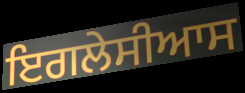
ਇਗਲੇਸੀਆਸ